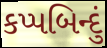
કપ્પબિન્દું